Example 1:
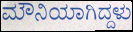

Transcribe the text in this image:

ಮೌನಿಯಾಗಿದ್ದಳು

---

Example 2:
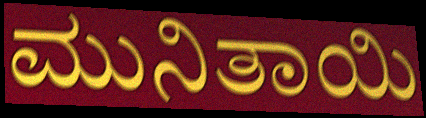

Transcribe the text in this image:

ಮುನಿತಾಯಿ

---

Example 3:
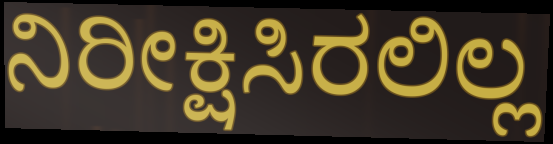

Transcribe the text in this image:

ನಿರೀಕ್ಷಿಸಿರಲಿಲ್ಲ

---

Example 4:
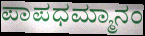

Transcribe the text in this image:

ಪಾಪಧಮ್ಮಾನಂ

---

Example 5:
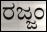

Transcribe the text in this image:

ರಜ್ಜಂ